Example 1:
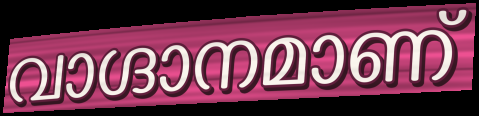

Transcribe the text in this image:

വാഗ്ദാനമാണ്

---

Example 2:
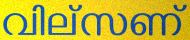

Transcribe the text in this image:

വില്സണ്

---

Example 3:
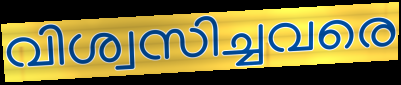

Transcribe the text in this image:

വിശ്വസിച്ചവരെ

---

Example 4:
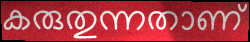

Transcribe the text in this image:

കരുതുന്നതാണ്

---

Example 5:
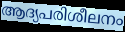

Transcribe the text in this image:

ആദ്യപരിശീലനം